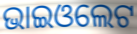
ଭାଇଓଲେଟ